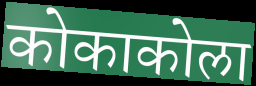
कोकाकोला